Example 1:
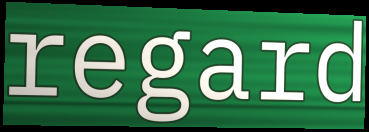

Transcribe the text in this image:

regard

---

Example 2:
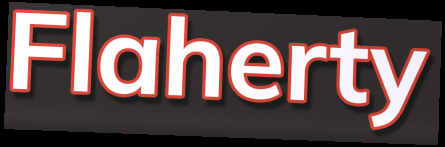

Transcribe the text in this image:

Flaherty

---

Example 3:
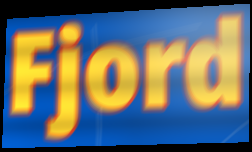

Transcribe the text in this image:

Fjord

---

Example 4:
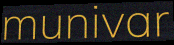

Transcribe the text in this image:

munivar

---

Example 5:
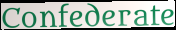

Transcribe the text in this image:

Confederate